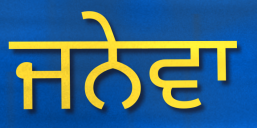
ਜਨੇਵਾ